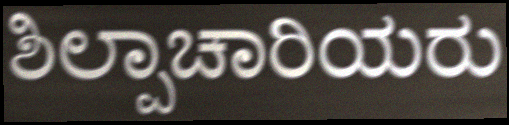
ಶಿಲ್ಪಾಚಾರಿಯರು